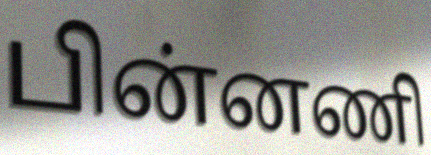
பின்னணி